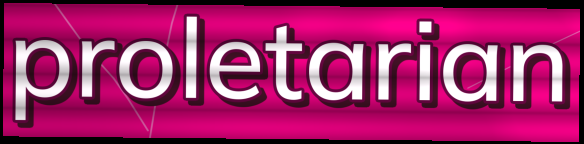
proletarian